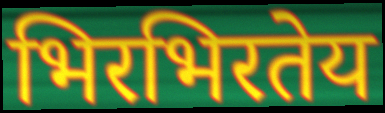
भिरभिरतेय